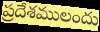
ప్రదేశములందు